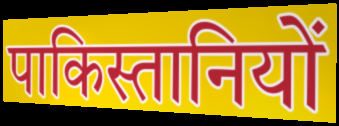
पाकिस्तानियों